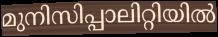
മുനിസിപ്പാലിറ്റിയിൽ